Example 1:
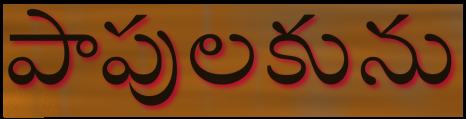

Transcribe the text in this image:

పాపులకును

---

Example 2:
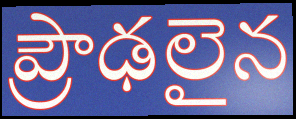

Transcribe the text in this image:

ప్రౌఢలైన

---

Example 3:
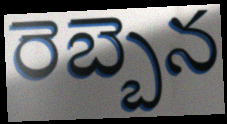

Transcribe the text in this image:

రెబ్బెన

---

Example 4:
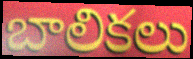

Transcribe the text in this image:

బాలికలు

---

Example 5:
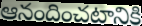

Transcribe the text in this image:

ఆనందించటానికి